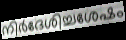
നിർദേശിച്ചശേഷം